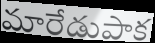
మారేడుపాక